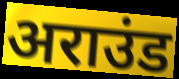
अराउंड